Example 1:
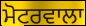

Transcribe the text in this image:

ਮੋਟਰਵਾਲਾ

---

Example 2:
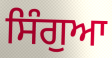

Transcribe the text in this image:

ਸਿੰਗੁਆ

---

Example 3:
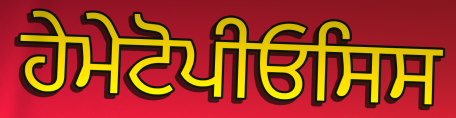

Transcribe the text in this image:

ਹੇਮੇਟੋਪੀਓਸਿਸ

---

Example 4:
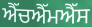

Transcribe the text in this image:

ਐੱਚਐੱਮਐੱਸ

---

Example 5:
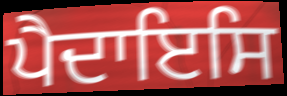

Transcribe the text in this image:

ਪੈਦਾਇਸਿ